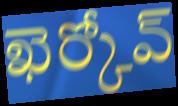
ఖెర్కోవ్